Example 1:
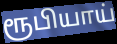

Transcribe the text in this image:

ரூபியாய்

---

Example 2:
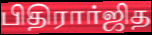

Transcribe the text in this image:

பிதிரார்ஜித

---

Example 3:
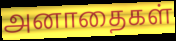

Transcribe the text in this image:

அனாதைகள்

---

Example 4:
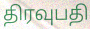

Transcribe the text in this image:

திரவுபதி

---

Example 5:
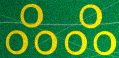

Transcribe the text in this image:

ஃஃ